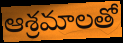
ఆశ్రమాలతో